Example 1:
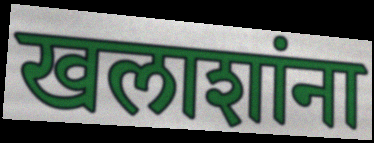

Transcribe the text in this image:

खलाशांना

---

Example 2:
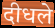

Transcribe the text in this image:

दीधले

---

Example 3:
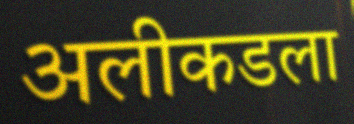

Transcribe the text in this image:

अलीकडला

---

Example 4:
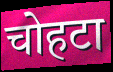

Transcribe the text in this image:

चोहटा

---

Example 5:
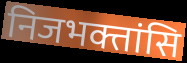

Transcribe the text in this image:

निजभक्तांसि